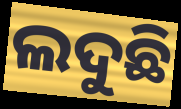
ଲଦୁଛି